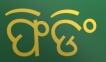
ଫିଡିଂ